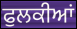
ਫੁਲਕੀਆਂ